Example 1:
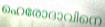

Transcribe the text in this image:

ഹെരോദാവിനെ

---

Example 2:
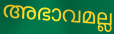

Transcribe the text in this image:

അഭാവമല്ല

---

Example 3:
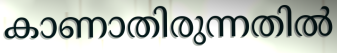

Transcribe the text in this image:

കാണാതിരുന്നതിൽ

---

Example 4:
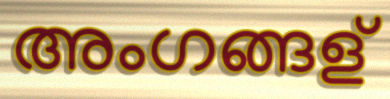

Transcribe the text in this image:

അംഗങ്ങള്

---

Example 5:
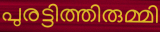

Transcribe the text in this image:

പുരട്ടിത്തിരുമ്മി